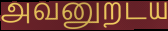
அவனுறடய